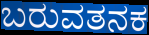
ಬರುವತನಕ